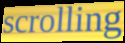
scrolling